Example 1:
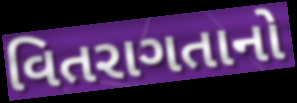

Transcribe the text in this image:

વિતરાગતાનો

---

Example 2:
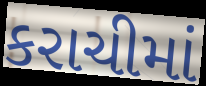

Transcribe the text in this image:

કરાચીમાં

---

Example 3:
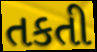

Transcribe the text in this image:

તકતી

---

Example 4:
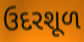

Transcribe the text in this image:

ઉદરશૂળ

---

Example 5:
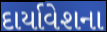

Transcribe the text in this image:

દાર્યાવેશના